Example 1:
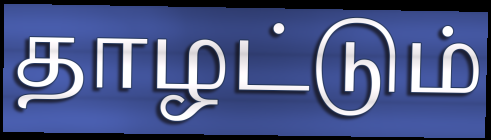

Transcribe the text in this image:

தாழட்டும்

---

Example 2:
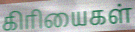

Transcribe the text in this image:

கிரியைகள்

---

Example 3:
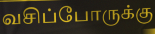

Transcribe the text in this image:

வசிப்போருக்கு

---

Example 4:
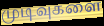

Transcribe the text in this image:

முடிவுகளை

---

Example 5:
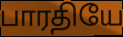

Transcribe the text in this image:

பாரதியே